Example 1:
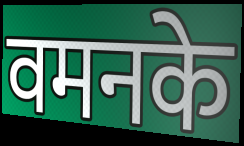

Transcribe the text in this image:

वमनके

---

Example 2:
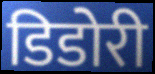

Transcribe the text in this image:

डिडोरी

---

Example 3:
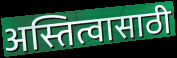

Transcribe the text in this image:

अस्तित्वासाठी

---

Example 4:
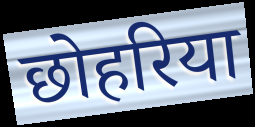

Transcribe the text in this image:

छोहरिया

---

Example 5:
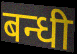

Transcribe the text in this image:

बन्धी